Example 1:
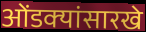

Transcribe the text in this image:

ओंडक्यांसारखे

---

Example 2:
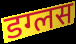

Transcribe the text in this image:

डग्लस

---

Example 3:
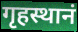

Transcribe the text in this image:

गृहस्थानं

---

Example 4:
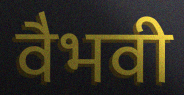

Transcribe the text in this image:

वैभवी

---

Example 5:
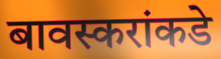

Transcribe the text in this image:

बावस्करांकडे